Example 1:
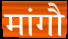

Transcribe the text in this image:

मांगौ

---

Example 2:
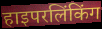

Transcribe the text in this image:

हाइपरलिंकिंग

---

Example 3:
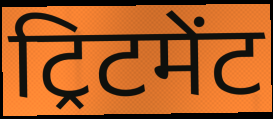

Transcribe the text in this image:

ट्रिटमेंट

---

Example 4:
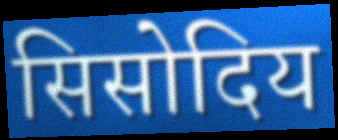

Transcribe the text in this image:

सिसोदिय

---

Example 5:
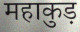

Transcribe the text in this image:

महाकुड़